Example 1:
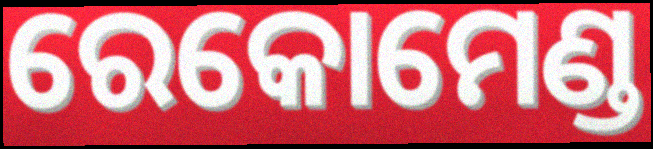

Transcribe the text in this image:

ରେକୋମେଣ୍ଡ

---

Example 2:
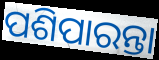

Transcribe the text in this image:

ପଶିପାରନ୍ତା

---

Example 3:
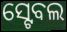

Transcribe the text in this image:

ସ୍ଟେବଲ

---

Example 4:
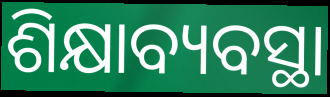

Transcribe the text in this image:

ଶିକ୍ଷାବ୍ୟବସ୍ଥା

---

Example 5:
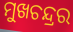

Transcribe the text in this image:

ମୁଖଚନ୍ଦ୍ରର